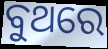
ବୁଥରେ